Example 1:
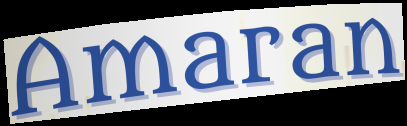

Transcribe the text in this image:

Amaran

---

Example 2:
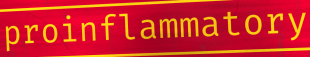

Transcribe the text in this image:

proinflammatory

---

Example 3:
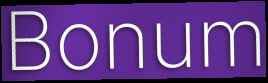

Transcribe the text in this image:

Bonum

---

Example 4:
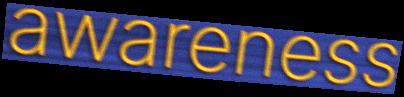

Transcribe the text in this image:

awareness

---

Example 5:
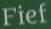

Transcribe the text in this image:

Fief